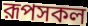
রূপসকল